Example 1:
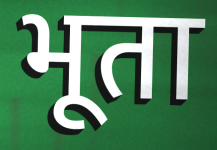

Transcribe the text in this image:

भूता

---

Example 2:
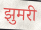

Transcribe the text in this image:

झुमरी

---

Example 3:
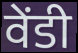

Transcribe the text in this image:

वेंडी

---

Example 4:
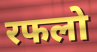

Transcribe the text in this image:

रफलो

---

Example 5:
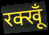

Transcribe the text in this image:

रक्खूँ